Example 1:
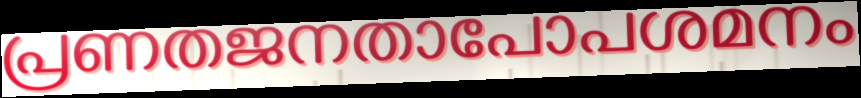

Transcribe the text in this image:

പ്രണതജനതാപോപശമനം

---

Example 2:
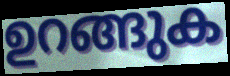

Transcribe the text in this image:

ഉറങ്ങുക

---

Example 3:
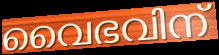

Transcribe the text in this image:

വൈഭവിന്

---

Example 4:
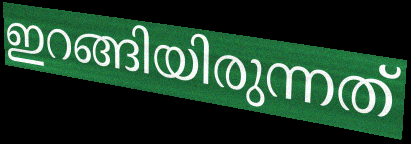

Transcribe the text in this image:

ഇറങ്ങിയിരുന്നത്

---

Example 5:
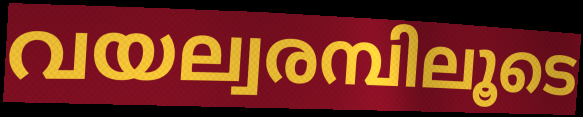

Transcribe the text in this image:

വയല്വരമ്പിലൂടെ